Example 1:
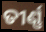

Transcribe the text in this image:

ତୀର୍ଣ୍ଣ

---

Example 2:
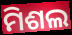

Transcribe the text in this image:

ମିଶଲ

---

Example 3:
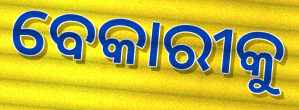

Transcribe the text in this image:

ବେକାରୀକୁ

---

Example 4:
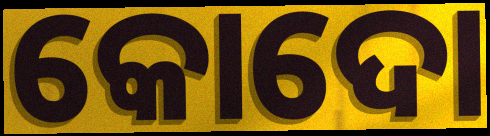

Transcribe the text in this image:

କୋଦୋ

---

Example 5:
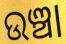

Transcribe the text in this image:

ଉଞ୍ଚା